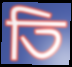
তি